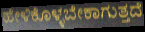
ಹೇಳಿಕೊಳ್ಳಬೇಕಾಗುತ್ತದೆ